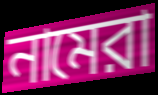
নামেরা